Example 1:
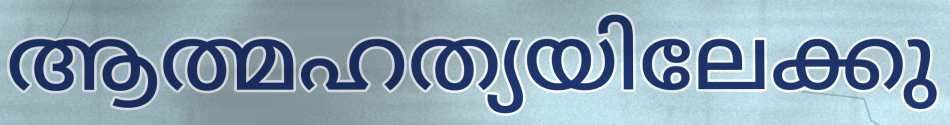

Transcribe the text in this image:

ആത്മഹത്യയിലേക്കു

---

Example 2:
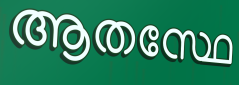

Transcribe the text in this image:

ആതസ്ഥേ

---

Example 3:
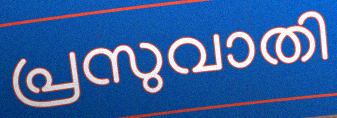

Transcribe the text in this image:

പ്രസുവാതി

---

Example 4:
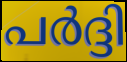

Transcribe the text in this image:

പർദ്ദി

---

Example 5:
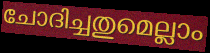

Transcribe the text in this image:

ചോദിച്ചതുമെല്ലാം